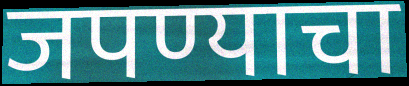
जपण्याचा